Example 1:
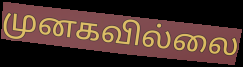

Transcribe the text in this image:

முனகவில்லை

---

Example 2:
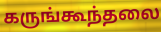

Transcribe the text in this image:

கருங்கூந்தலை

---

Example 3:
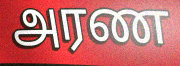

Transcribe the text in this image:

அரண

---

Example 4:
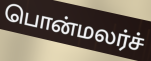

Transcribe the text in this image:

பொன்மலர்ச்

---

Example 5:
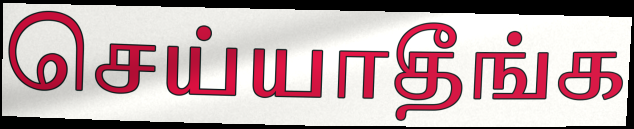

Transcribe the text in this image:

செய்யாதீங்க